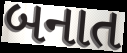
બનાત